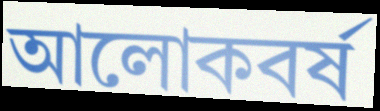
আলোকবৰ্ষ